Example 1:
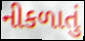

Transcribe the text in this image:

નીકળાતું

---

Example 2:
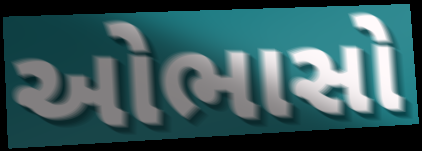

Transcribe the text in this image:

ઓભાસો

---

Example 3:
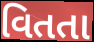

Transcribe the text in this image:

વિતતા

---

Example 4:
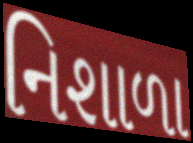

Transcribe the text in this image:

નિશાળા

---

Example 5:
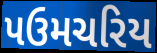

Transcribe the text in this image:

પઉમચરિય